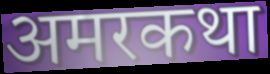
अमरकथा